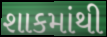
શાકમાંથી